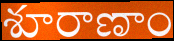
శూరాణాం